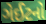
ગેઈટનો